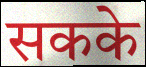
सकके